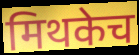
मिथकेच